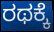
ರಥಕ್ಕೆ